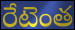
రేటెంత